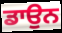
ਡਾਉਨ